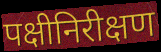
पक्षीनिरीक्षण